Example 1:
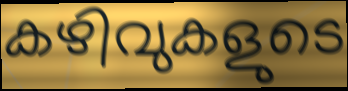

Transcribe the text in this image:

കഴിവുകളുടെ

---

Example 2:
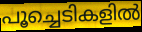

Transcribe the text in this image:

പൂച്ചെടികളിൽ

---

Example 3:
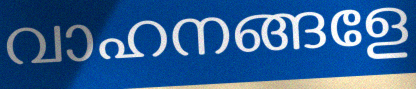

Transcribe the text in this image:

വാഹനങ്ങളേ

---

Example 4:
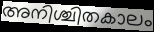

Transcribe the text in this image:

അനിശ്ചിതകാലം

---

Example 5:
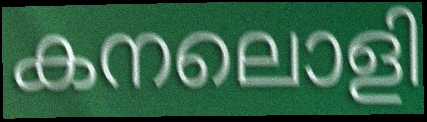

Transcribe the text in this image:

കനലൊളി